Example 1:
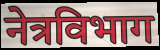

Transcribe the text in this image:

नेत्रविभाग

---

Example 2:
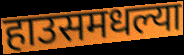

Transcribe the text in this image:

हाउसमधल्या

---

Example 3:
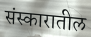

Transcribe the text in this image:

संस्कारातील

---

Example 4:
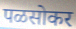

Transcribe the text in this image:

पळसोकर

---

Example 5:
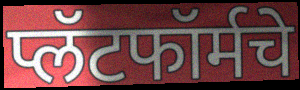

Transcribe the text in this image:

प्लॅटफॉर्मचे